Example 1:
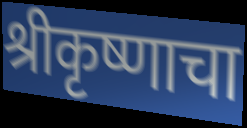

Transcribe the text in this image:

श्रीकृष्णाचा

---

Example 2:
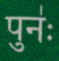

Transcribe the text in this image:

पुनः॑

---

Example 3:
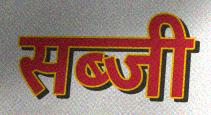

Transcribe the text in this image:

सब्जी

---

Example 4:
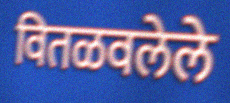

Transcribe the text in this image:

वितळवलेले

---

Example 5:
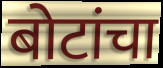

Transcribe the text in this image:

बोटांचा